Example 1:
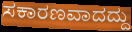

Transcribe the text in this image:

ಸಕಾರಣವಾದದ್ದು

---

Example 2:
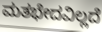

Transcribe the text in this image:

ಮತಭೇದವಿಲ್ಲದೆ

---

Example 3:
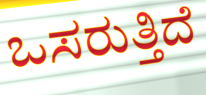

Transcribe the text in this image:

ಒಸರುತ್ತಿದೆ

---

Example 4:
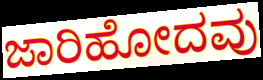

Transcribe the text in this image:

ಜಾರಿಹೋದವು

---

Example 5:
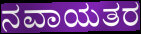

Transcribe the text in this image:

ನವಾಯತರ